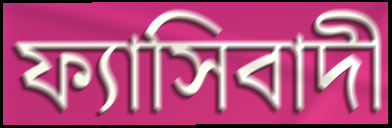
ফ্যাসিবাদী